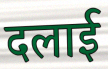
दलाई